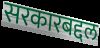
सरकारबद्दल